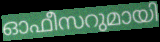
ഓഫീസറുമായി